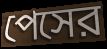
পেসের